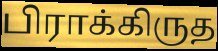
பிராக்கிருத